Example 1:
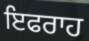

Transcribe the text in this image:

ਇਫਰਾਹ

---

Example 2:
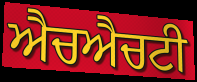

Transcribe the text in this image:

ਐਚਐਚਟੀ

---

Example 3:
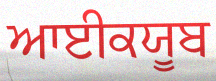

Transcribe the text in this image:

ਆਈਕਯੂਬ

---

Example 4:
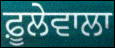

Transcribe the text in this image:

ਫ਼ੂਲੇਵਾਲਾ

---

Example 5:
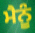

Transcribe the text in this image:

ਮੈਨੂੰ